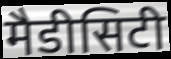
मैडीसिटी